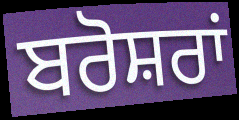
ਬਰੋਸ਼ਰਾਂ